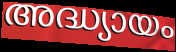
അദ്ധ്യായം